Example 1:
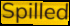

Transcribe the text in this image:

Spilled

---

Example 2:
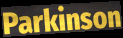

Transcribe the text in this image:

Parkinson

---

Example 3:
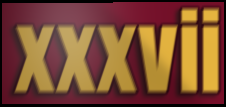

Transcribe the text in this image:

xxxvii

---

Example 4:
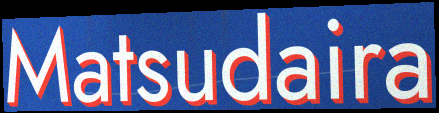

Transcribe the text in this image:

Matsudaira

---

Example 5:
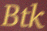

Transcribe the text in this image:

Btk